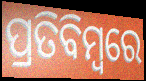
ପ୍ରତିବିମ୍ବରେ